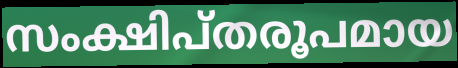
സംക്ഷിപ്തരൂപമായ